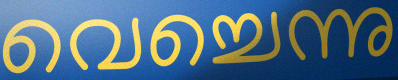
വെച്ചെന്നു